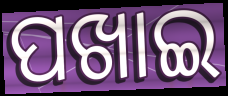
ପଖାଇ